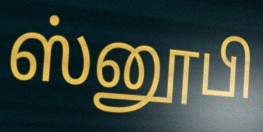
ஸ்னூபி